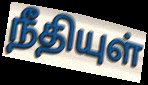
நீதியுள்